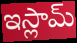
ఇస్లామ్